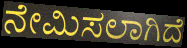
ನೇಮಿಸಲಾಗಿದೆ